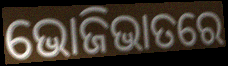
ଭୋଜିଭାତରେ